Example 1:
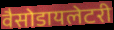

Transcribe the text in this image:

वैसोडायलेटरी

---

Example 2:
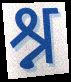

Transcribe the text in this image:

श्न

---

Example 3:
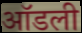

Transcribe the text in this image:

ऑडली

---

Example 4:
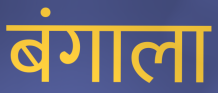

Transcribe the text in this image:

बंगाला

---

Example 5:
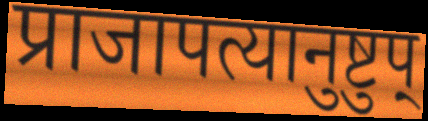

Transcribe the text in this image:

प्राजापत्यानुष्टुप्